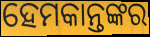
ହେମକାନ୍ତଙ୍କର